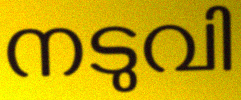
നടുവി